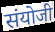
संयोजी